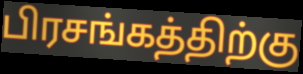
பிரசங்கத்திற்கு